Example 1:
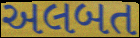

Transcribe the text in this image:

અલબત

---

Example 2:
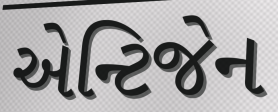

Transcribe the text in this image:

એન્ટિજેન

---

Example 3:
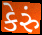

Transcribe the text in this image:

કેરું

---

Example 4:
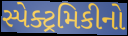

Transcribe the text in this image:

સ્પેક્ટ્રમિકીનો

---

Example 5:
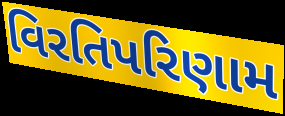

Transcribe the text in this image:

વિરતિપરિણામ